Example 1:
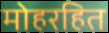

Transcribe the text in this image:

मोहरहित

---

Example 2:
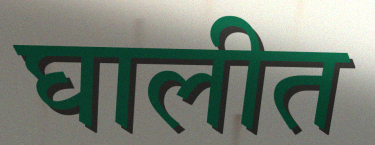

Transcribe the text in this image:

घालीत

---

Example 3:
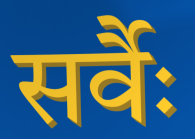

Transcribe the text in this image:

सर्वैः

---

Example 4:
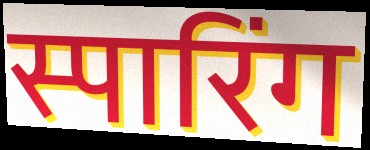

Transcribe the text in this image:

स्पारिंग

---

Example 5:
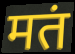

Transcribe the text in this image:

मतं